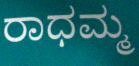
ರಾಧಮ್ಮ